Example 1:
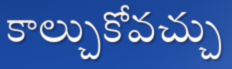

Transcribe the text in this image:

కాల్చుకోవచ్చు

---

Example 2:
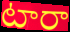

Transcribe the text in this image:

టారా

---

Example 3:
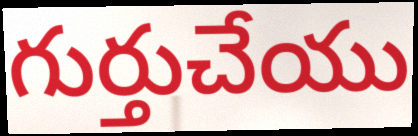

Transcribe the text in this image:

గుర్తుచేయు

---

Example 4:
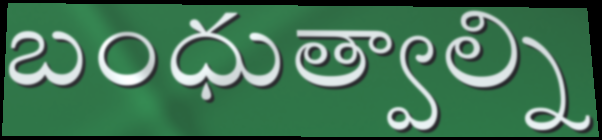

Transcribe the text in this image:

బంధుత్వాల్ని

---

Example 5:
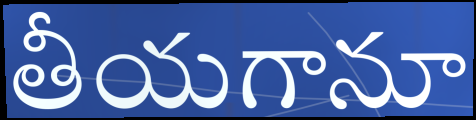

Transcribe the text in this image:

తీయగానూ